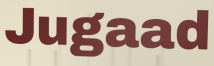
Jugaad